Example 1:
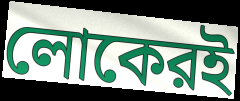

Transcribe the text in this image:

লোকেরই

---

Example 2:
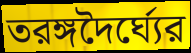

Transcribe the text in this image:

তরঙ্গদৈর্ঘ্যের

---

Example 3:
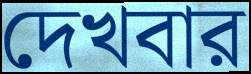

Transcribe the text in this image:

দেখবার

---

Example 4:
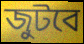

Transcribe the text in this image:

জুটবে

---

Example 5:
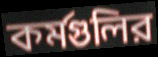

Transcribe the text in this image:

কর্মগুলির